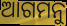
ଆଗମନୁ